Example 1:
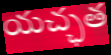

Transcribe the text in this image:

యచ్ఛత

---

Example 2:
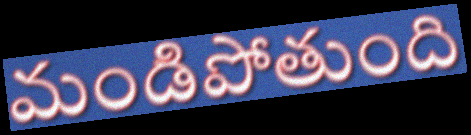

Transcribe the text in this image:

మండిపోతుంది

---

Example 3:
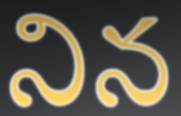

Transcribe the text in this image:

నిన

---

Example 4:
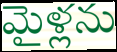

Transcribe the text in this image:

మైళ్లను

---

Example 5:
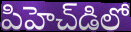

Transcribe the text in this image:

పిహెచ్‌డిలో